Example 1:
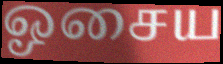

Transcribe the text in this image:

ஓசைய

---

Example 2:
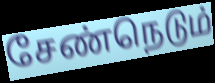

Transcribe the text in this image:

சேண்நெடும்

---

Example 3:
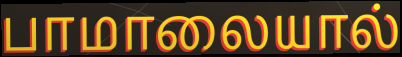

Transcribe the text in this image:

பாமாலையால்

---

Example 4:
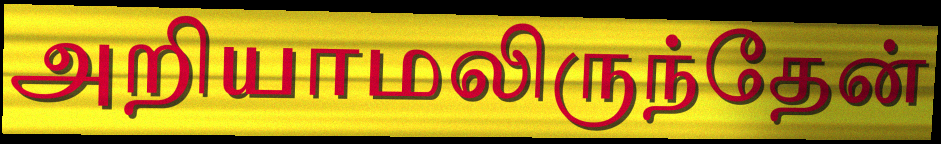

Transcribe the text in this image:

அறியாமலிருந்தேன்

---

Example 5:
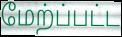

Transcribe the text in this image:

மேற்ப்பட்ட